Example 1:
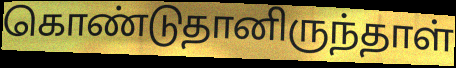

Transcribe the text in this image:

கொண்டுதானிருந்தாள்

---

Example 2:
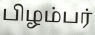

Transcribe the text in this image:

பிழம்பர்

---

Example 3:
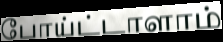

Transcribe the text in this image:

போய்ட்டாளாம்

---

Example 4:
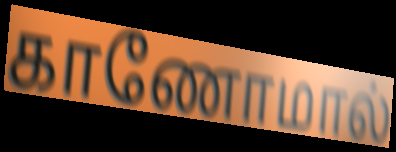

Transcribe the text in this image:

காணோமால்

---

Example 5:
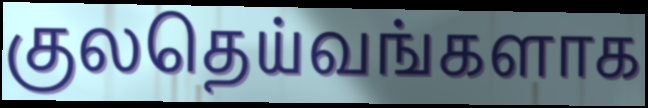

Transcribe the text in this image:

குலதெய்வங்களாக